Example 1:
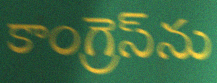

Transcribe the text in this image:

కాంగ్రెస్‌ను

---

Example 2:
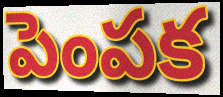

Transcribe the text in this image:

పెంపక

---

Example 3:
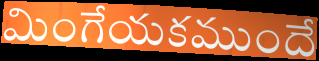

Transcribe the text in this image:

మింగేయకముందే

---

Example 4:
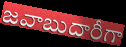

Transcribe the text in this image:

జవాబుదారీగా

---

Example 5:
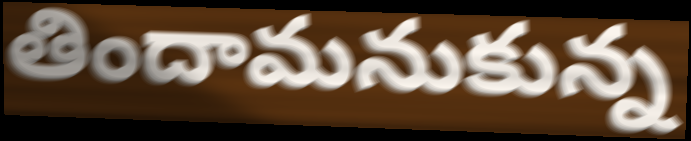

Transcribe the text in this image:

తిందామనుకున్న